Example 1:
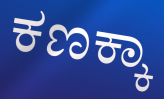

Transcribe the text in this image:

ಕಣಕ್ಕಾ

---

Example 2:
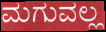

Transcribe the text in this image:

ಮಗುವಲ್ಲ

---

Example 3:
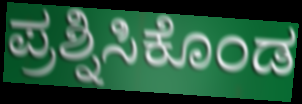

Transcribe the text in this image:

ಪ್ರಶ್ನಿಸಿಕೊಂಡ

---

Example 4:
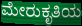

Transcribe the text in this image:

ಮೇರುಕೃತಿಯ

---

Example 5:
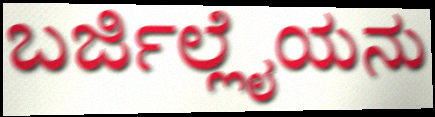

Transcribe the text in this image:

ಬರ್ಜಿಲ್ಲೈಯನು